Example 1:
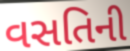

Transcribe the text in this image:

વસતિની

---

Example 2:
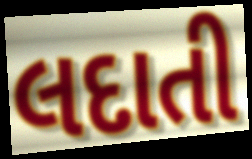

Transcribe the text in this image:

લદાતી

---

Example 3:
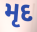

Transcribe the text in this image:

મૃદ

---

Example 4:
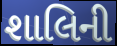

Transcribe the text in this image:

શાલિની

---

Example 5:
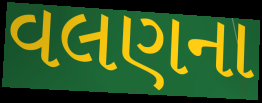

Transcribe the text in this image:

વલણના